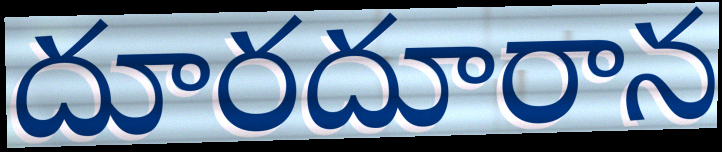
దూరదూరాన